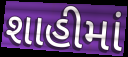
શાહીમાં